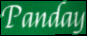
Panday